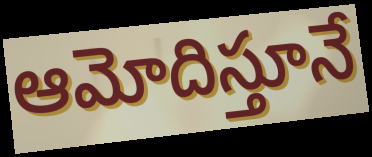
ఆమోదిస్తూనే